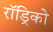
रॉड्रिको